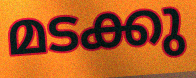
മടക്കു